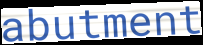
abutment